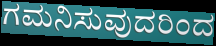
ಗಮನಿಸುವುದರಿಂದ